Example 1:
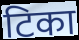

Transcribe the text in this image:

टिका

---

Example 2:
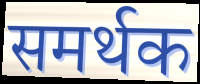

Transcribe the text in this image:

समर्थक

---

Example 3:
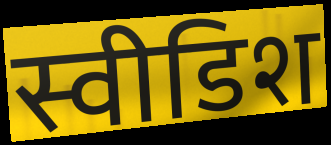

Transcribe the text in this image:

स्वीडिश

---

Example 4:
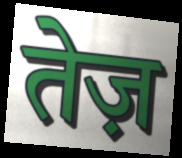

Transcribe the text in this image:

तेज़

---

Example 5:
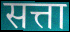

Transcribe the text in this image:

सत्ता